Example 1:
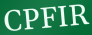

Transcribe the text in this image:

CPFIR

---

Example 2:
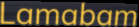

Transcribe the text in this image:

Lamabam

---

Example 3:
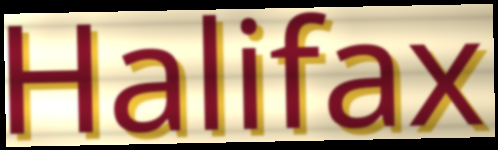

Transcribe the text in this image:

Halifax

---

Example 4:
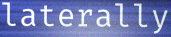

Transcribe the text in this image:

laterally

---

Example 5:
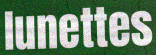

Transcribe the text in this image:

lunettes